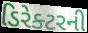
ડિરેક્ટરની